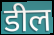
डील